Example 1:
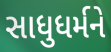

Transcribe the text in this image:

સાધુધર્મને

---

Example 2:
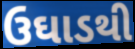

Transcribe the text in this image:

ઉઘાડથી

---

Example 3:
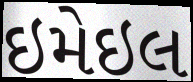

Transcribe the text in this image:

ઇમેઇલ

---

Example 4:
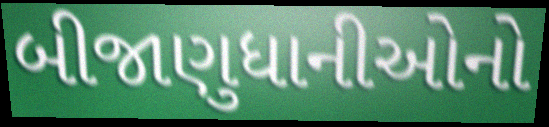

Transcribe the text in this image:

બીજાણુધાનીઓનો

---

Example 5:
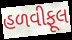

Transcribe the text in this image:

હળવીફૂલ